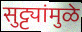
सुट्ट्यांमुळे